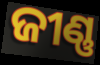
ଜୀଣ୍ଣ